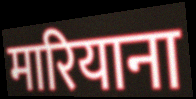
मारियाना